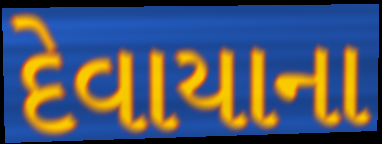
દેવાયાના